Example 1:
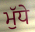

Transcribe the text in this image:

ਮੁੱਧੇ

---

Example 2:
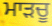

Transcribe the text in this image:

ਮਾੜਚੂ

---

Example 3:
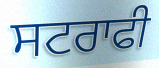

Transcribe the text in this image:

ਸਟਰਾਫੀ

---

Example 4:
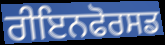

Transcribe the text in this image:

ਰੀਇਨਫੋਰਸਡ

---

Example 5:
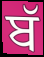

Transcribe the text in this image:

ਬੱ